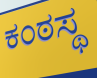
ಕಂಠಸ್ಥ